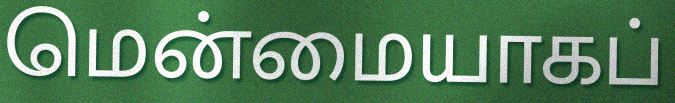
மென்மையாகப்